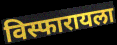
विस्फारायला